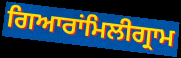
ਗਿਆਰਾਂਮਿਲੀਗ੍ਰਾਮ